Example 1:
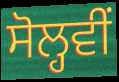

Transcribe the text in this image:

ਸੋਲ੍ਹਵੀਂ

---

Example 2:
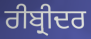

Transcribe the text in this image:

ਰੀਬ੍ਰੀਦਰ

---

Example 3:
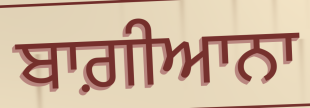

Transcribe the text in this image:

ਬਾਗ਼ੀਆਨਾ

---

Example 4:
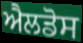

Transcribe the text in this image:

ਐਲਡੋਸ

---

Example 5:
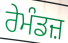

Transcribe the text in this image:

ਰੇਮੰਡਜ਼